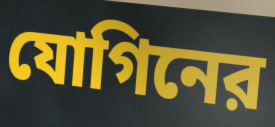
যোগিনের